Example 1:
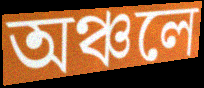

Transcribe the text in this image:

অঞ্চলে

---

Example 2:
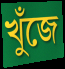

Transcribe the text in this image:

খুঁজে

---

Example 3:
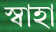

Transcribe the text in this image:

স্বাহা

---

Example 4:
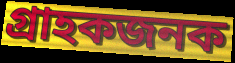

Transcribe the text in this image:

গ্ৰাহকজনক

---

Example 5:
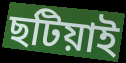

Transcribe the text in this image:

ছটিয়াই